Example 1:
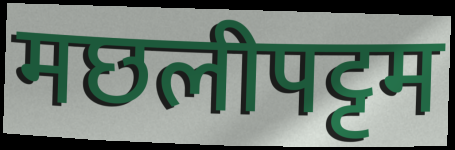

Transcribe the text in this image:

मछलीपट्टम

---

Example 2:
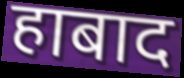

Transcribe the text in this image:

हाबाद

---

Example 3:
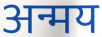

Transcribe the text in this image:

अन्मय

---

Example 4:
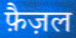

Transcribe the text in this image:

फ़ैज़ल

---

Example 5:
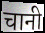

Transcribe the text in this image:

चानी